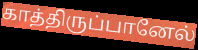
காத்திருப்பானேல்